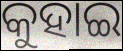
କୁହାଇ